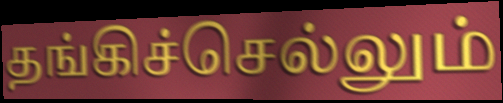
தங்கிச்செல்லும்